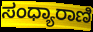
ಸಂಧ್ಯಾರಾಣಿ